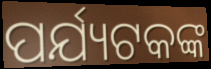
ପର୍ଯ୍ୟଟକଙ୍କ